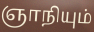
ஞாநியும்